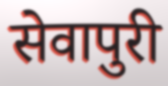
सेवापुरी